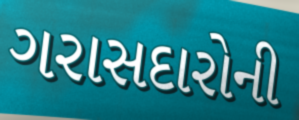
ગરાસદારોની